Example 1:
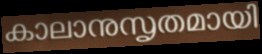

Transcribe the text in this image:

കാലാനുസൃതമായി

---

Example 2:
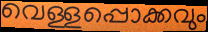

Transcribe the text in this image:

വെള്ളപ്പൊക്കവും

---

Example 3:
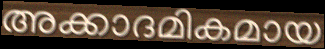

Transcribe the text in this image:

അക്കാദമികമായ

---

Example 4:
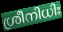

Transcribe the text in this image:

ശ്രീനിധിഃ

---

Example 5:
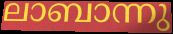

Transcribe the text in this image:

ലാബാന്നു